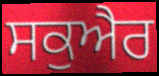
ਸਕੁਐਰ